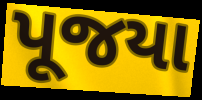
પૂજયા